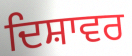
ਦਿਸ਼ਾਵਰ